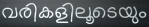
വരികളിലൂടെയും